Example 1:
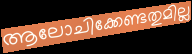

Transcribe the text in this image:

ആലോചിക്കേണ്ടതുമില്ല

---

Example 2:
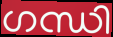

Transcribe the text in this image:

ഗന്ധി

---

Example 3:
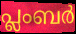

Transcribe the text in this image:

പ്ലംബർ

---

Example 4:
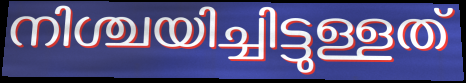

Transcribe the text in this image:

നിശ്ചയിച്ചിട്ടുള്ളത്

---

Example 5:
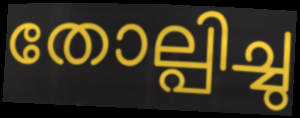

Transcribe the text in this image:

തോല്പിച്ചു